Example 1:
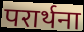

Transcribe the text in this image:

परार्थना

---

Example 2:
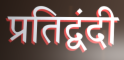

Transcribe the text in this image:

प्रतिद्वंदी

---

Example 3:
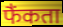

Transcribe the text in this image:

फैंकता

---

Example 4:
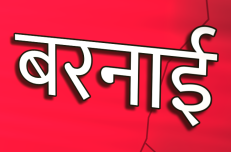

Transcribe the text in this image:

बरनाई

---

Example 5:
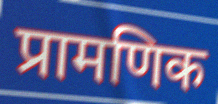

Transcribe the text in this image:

प्रामणिक